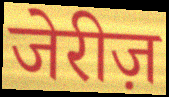
जेरीज़